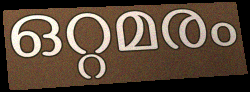
ഒറ്റമരം